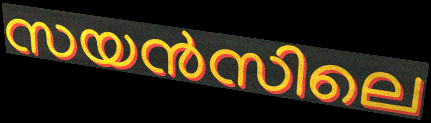
സയൻസിലെ